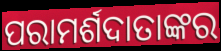
ପରାମର୍ଶଦାତାଙ୍କର